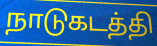
நாடுகடத்தி